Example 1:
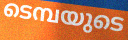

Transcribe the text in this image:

ടെമ്പയുടെ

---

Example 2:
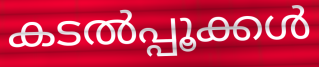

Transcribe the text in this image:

കടൽപ്പൂക്കൾ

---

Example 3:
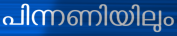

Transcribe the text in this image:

പിന്നണിയിലും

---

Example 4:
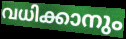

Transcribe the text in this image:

വധിക്കാനും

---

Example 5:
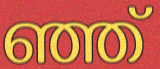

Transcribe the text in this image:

ഞ്ഞ്